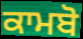
ਕਾਮਬੋ